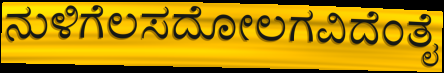
ನುಳಿಗೆಲಸದೋಲಗವಿದೆಂತೈ